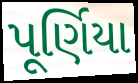
પૂર્ણિયા